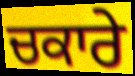
ਚਕਾਰੇ